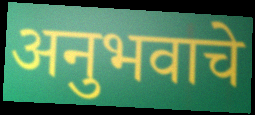
अनुभवाचे